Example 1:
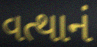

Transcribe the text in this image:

વત્થાનં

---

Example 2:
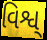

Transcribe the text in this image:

વિશ્વ્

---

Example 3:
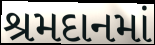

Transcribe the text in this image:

શ્રમદાનમાં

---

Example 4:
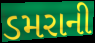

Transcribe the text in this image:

ડમરાની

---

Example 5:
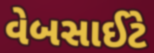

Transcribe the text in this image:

વેબસાઈટે